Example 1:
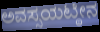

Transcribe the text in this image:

ಅವಸ್ಸಯಟ್ಠೇನ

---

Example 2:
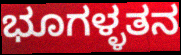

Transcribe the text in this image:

ಭೂಗಳ್ಳತನ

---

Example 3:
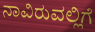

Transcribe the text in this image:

ನಾವಿರುವಲ್ಲಿಗೆ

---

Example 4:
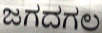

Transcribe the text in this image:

ಜಗದಗಲ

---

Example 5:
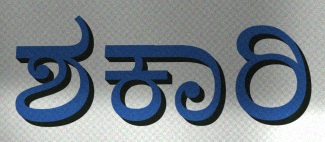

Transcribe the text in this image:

ಶಕಾರಿ